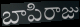
బాపిరాజు